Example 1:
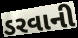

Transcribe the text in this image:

ડરવાની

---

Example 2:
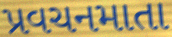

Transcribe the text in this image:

પ્રવચનમાતા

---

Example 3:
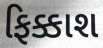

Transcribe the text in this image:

ફિક્કાશ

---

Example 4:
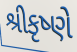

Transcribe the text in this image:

શ્રીકૃષ્ણે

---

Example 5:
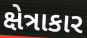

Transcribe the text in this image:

ક્ષેત્રાકાર